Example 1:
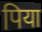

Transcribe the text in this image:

पिया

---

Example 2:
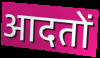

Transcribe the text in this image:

आदतों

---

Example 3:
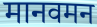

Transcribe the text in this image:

मानवमन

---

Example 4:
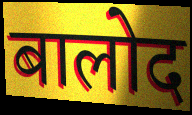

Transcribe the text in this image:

बालोद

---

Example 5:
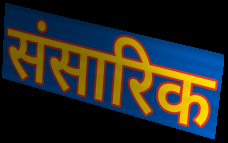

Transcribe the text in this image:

संसारिक